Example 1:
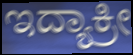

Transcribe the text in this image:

ಇದ್ಯಾಕ್ರೀ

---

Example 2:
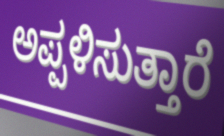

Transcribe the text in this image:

ಅಪ್ಪಳಿಸುತ್ತಾರೆ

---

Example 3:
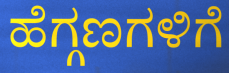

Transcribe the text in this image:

ಹೆಗ್ಗಣಗಳಿಗೆ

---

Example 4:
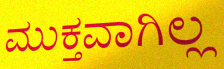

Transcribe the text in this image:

ಮುಕ್ತವಾಗಿಲ್ಲ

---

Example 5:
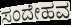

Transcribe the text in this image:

ಸಂದೇಹವ